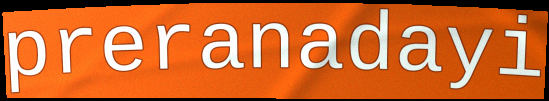
preranadayi